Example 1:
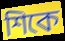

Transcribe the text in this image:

শিকে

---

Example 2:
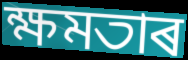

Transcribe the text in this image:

ক্ষমতাৰ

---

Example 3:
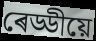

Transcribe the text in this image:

ৰেড্ডীয়ে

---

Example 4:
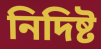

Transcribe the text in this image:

নিদিষ্ট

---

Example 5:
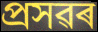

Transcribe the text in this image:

প্ৰসৱৰ